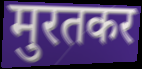
मुरतकर